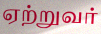
ஏற்றுவர்